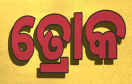
ତ୍ରୋକ